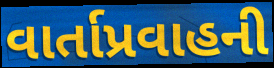
વાર્તાપ્રવાહની